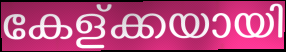
കേള്ക്കയായി